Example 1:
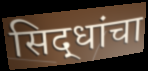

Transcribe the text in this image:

सिद्धांचा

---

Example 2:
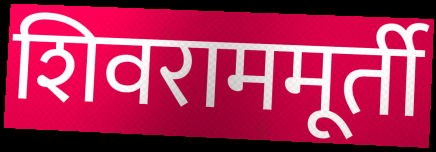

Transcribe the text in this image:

शिवराममूर्ती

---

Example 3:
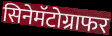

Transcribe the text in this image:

सिनेमॅटोग्राफर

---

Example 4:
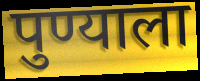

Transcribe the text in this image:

पुण्याला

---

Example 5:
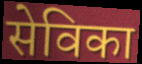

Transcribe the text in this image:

सेविका